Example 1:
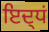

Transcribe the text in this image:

ਇਦ੍ਧਂ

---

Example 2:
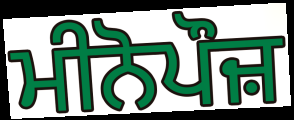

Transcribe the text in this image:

ਮੀਨੋਪੌਜ਼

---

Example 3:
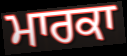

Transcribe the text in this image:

ਮਾਰਕਾ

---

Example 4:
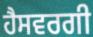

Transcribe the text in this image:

ਹੈਸਵਰਗੀ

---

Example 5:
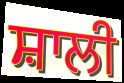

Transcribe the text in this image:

ਸ਼ਾਲੀ